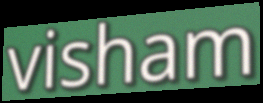
visham